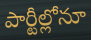
పార్టీల్లోనూ